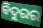
ବିଦୁରର